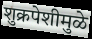
शुक्रपेशीमुळे